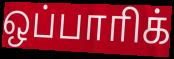
ஒப்பாரிக்